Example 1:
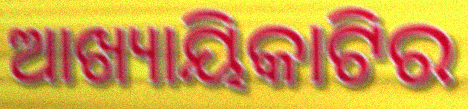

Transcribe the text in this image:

ଆଖ୍ୟାୟିକାଟିର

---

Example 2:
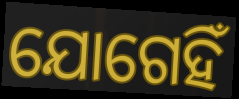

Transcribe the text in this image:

ଯୋଗେହିଁ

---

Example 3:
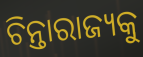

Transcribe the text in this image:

ଚିନ୍ତାରାଜ୍ୟକୁ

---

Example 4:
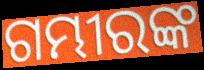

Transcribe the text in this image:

ଗମ୍ଭୀରଙ୍କ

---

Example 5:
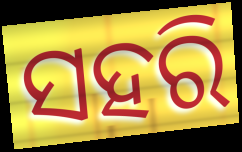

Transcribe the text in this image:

ସହରି